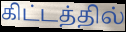
கிட்டத்தில்